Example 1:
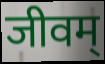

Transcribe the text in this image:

जीवम्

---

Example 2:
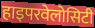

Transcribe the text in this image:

हाइपरवेलोसिटी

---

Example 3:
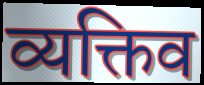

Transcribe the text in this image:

व्यक्तिव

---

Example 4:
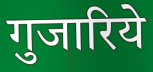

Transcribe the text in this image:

गुजारिये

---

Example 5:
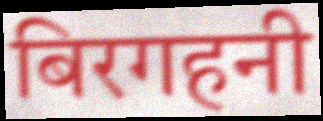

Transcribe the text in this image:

बिरगहनी